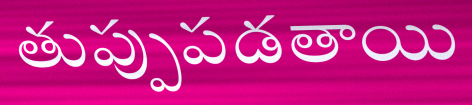
తుప్పుపడతాయి